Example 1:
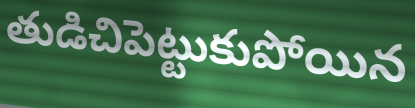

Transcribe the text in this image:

తుడిచిపెట్టుకుపోయిన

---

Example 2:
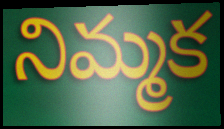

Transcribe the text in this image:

నిమ్మక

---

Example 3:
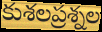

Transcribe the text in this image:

కుశలప్రశ్నల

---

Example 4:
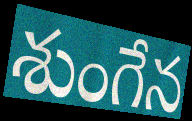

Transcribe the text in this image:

శుంగేన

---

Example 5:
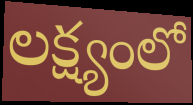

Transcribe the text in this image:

లక్ష్యంలో